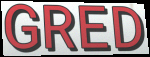
GRED